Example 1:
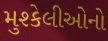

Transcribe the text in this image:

મુશ્કેલીઓનો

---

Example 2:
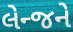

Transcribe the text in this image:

લેન્જને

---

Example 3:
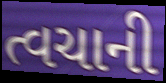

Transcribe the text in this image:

ત્વચાની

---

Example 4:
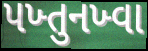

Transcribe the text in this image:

પખ્તુનખ્વા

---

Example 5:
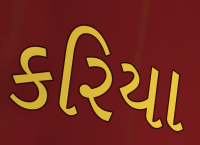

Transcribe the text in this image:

કરિયા